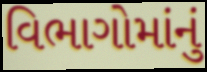
વિભાગોમાંનું